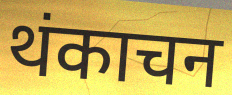
थंकाचन